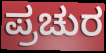
ಪ್ರಚುರ